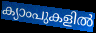
ക്യാംപുകളിൽ